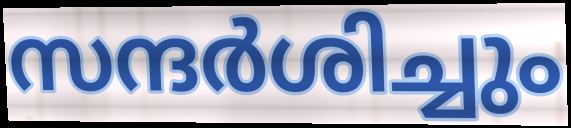
സന്ദർശിച്ചും